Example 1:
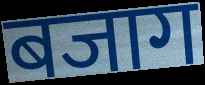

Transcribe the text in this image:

बजाग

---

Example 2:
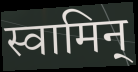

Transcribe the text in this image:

स्वामिन्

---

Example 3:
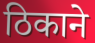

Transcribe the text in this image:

ठिकाने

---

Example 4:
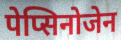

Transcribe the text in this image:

पेप्सिनोजेन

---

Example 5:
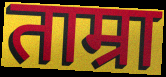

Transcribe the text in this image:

ताम्रा